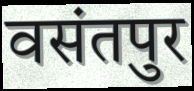
वसंतपुर